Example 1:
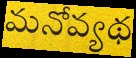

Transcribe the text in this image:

మనోవ్యథ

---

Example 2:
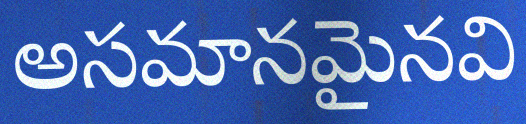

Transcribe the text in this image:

అసమానమైనవి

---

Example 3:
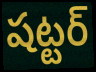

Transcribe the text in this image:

షట్టర్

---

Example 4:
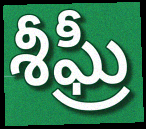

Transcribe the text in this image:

శీఘ్రీ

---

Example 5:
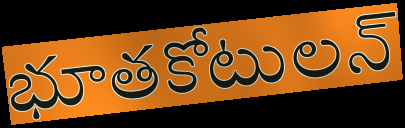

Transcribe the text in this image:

భూతకోటులన్